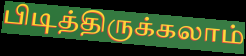
பிடித்திருக்கலாம்